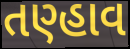
તણ્હાવ